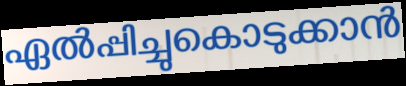
ഏൽപ്പിച്ചുകൊടുക്കാൻ